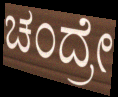
ಚಂದ್ರೇ